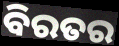
ବିରତର